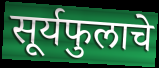
सूर्यफुलाचे